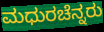
ಮಧುರಚೆನ್ನರು